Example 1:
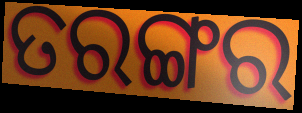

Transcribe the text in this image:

ତରଙ୍ଗର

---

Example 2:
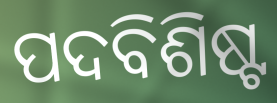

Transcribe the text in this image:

ପଦବିଶିଷ୍ଟ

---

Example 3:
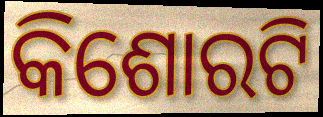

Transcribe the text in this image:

କିଶୋରଟି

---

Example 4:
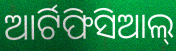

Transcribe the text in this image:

ଆର୍ଟିଫିସିଆଲ୍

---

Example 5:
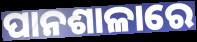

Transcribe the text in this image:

ପାନଶାଳାରେ